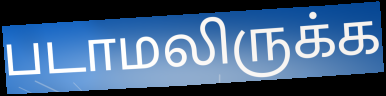
படாமலிருக்க